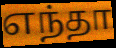
எந்தா